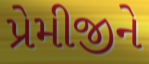
પ્રેમીજીને